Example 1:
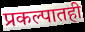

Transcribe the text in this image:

प्रकल्पातही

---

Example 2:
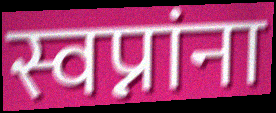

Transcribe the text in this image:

स्वप्नांना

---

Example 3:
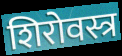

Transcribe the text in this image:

शिरोवस्त्र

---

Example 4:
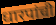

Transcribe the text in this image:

धारपांची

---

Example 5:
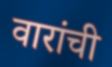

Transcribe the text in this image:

वारांची